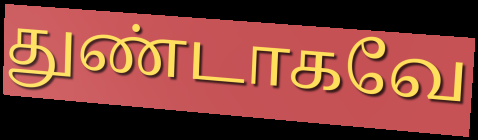
துண்டாகவே